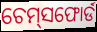
ଚେମ୍‌ସଫୋର୍ଡ